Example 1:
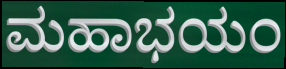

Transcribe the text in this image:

ಮಹಾಭಯಂ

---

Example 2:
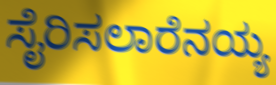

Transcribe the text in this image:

ಸೈರಿಸಲಾರೆನಯ್ಯ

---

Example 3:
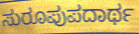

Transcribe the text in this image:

ಸುರೂಪುಪದಾರ್ಥ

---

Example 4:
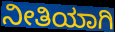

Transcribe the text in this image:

ನೀತಿಯಾಗಿ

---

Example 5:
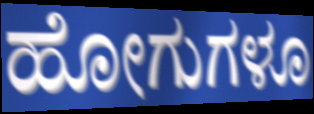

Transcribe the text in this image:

ಹೋಗುಗಳೂ